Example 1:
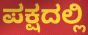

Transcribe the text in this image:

ಪಕ್ಷದಲ್ಲಿ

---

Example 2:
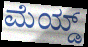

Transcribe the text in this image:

ಮೆಯ್ಡ್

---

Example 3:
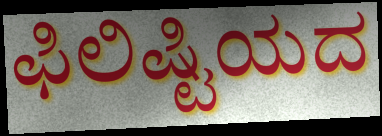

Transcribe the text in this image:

ಫಿಲಿಷ್ಟಿಯದ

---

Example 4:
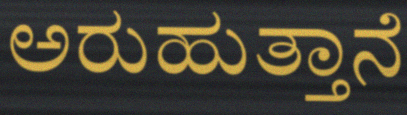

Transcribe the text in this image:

ಅರುಹುತ್ತಾನೆ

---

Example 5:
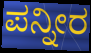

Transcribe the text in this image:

ಪನ್ನೀರ